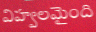
విహ్వలమైంది